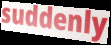
suddenly